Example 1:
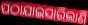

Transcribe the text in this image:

ପଠାଯାଇସାରିଲାଣି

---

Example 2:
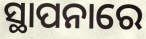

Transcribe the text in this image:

ସ୍ଥାପନାରେ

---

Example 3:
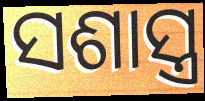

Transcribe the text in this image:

ସଶାସ୍ତ୍ର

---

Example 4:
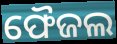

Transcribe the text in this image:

ଫୈଜଲ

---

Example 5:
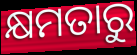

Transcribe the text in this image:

କ୍ଷମତାରୁ